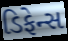
ડિફેન્સ